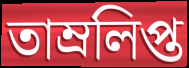
তাম্রলিপ্ত